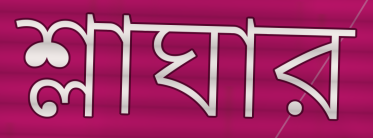
শ্লাঘার